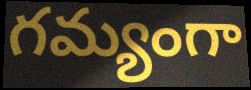
గమ్యంగా